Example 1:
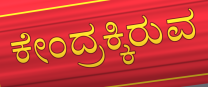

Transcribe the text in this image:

ಕೇಂದ್ರಕ್ಕಿರುವ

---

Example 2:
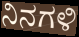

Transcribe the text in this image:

ನಿನಗಳಿ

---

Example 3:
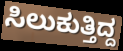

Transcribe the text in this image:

ಸಿಲುಕುತ್ತಿದ್ದ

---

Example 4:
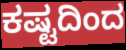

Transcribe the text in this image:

ಕಷ್ಟದಿಂದ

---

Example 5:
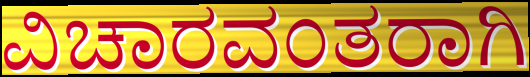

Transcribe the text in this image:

ವಿಚಾರವಂತರಾಗಿ